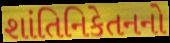
શાંતિનિકેતનનો